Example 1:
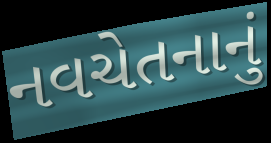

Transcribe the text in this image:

નવચેતનાનું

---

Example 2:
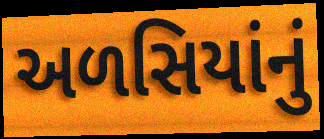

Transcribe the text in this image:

અળસિયાંનું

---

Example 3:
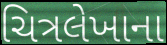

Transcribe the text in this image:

ચિત્રલેખાના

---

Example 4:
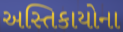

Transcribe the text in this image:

અસ્તિકાયોના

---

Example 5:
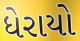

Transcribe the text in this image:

ધેરાયો